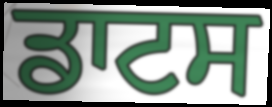
ਡਾਟਸ